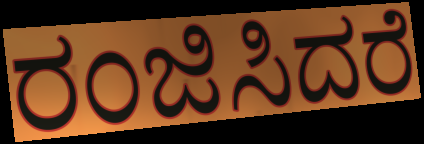
ರಂಜಿಸಿದರೆ